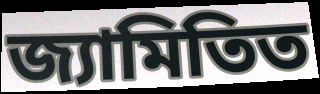
জ্যামিতিত